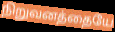
நிறுவனத்தையே